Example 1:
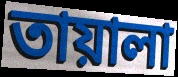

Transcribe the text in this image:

তায়ালা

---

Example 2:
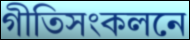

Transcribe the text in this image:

গীতিসংকলনে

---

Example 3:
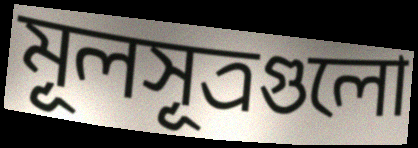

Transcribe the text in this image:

মূলসূত্রগুলো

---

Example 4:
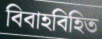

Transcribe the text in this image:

বিবাহবিহিত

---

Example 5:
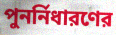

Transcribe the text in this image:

পুনর্নিধারণের